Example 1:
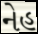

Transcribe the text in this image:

નેહ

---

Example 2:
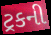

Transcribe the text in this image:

ટ્રકની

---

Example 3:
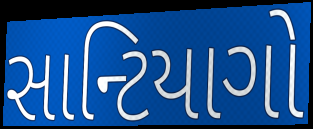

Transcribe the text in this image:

સાન્ટિયાગો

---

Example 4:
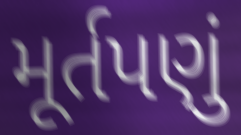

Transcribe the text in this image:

મૂર્તપણું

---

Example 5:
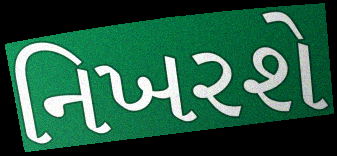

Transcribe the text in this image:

નિખરશે